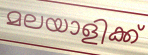
മലയാളിക്ക്